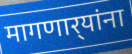
मागणार्‍यांना